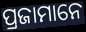
ପ୍ରଜାମାନେ